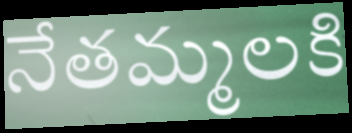
నేతమ్మలకి